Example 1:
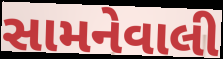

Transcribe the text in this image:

સામનેવાલી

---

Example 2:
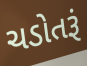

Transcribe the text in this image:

ચડોતરૂં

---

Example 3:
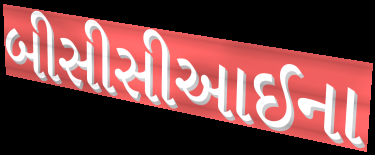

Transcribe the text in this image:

બીસીસીઆઈના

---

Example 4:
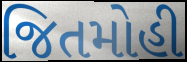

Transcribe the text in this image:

જિતમોહી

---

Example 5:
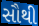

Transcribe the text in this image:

સૌથી